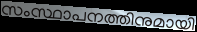
സംസ്ഥാപനത്തിനുമായി